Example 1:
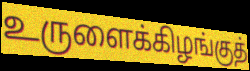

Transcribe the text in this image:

உருளைக்கிழங்குத்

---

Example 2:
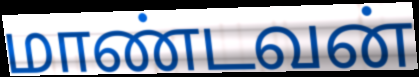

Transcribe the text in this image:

மாண்டவன்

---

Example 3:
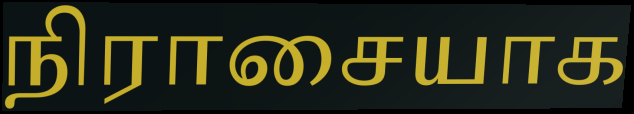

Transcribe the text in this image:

நிராசையாக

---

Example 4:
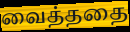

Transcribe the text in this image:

வைத்ததை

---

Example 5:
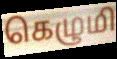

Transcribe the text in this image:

கெழுமி